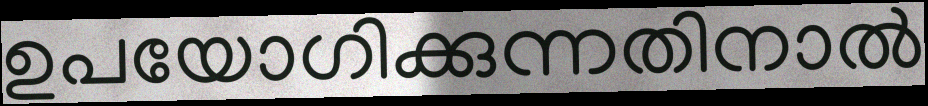
ഉപയോഗിക്കുന്നതിനാൽ